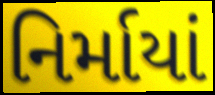
નિર્માયાં